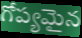
గోప్యమైన